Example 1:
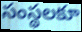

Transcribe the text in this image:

సంస్థలకూ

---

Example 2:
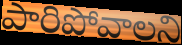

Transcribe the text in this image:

పారిపోవాలని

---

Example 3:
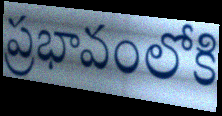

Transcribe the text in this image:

ప్రభావంలోకి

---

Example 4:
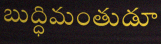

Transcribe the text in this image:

బుద్ధిమంతుడూ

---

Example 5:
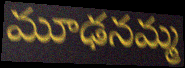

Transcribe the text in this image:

మూఢనమ్మ